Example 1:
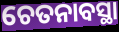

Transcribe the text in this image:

ଚେତନାବସ୍ଥା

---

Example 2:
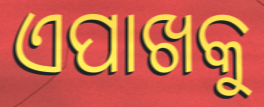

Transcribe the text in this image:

ଏପାଖକୁ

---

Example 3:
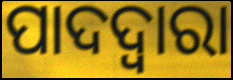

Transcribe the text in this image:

ପାଦଦ୍ଵାରା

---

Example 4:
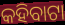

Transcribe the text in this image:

କହିବାଟା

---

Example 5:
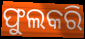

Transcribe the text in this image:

ଫୁଲକରି